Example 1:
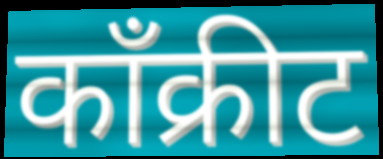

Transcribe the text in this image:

काँक्रीट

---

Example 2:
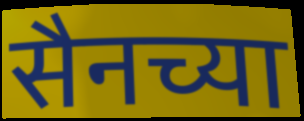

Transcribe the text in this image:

सैनच्या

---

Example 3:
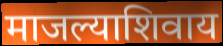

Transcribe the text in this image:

माजल्याशिवाय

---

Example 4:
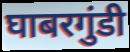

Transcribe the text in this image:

घाबरगुंडी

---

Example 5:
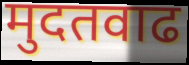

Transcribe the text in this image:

मुदतवाढ